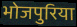
भोजपुरिया